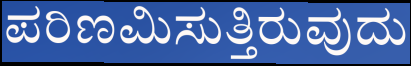
ಪರಿಣಮಿಸುತ್ತಿರುವುದು